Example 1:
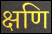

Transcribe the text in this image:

क्षणि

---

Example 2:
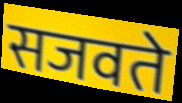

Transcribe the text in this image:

सजवते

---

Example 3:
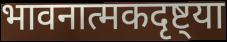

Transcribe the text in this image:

भावनात्मकदृष्ट्या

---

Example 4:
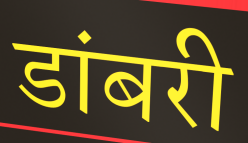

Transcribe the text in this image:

डांबरी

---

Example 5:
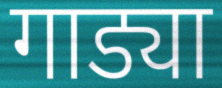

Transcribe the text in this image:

गाड्या